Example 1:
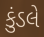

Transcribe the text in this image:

કુંડલે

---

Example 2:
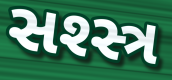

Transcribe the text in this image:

સશ્સ્ત્ર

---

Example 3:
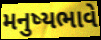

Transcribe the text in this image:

મનુષ્યભાવે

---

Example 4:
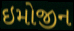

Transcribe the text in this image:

ઇમોજીન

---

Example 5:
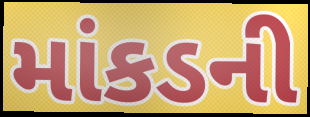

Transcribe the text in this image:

માંકડની